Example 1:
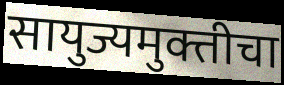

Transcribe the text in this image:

सायुज्यमुक्तीचा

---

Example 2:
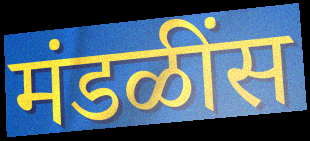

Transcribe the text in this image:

मंडळींस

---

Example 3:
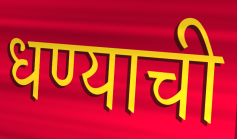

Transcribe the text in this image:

धण्याची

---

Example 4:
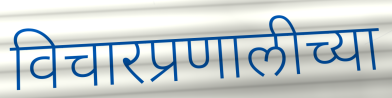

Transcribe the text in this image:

विचारप्रणालीच्या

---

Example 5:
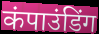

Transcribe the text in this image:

कंपाउंडिंग